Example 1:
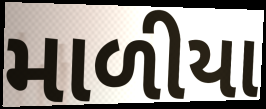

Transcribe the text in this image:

માળીયા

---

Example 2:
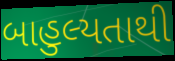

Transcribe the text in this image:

બાહુલ્યતાથી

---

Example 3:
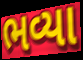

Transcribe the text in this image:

ભવ્યા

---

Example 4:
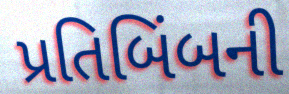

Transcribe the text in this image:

પ્રતિબિંબની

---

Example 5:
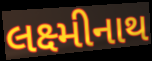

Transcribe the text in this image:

લક્ષ્મીનાથ